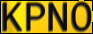
KPNO